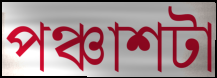
পঞ্চাশটা